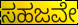
ಸಹಜವೇ